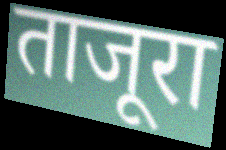
ताजूरा